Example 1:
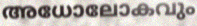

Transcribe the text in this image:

അധോലോകവും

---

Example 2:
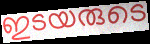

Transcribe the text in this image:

ഇടയരുടെ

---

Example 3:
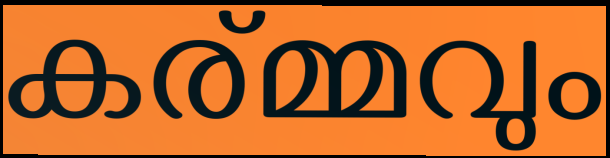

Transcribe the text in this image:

കര്മ്മവും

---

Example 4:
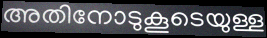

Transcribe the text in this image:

അതിനോടുകൂടെയുള്ള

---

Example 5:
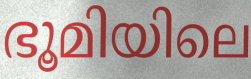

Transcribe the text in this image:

ഭൂമിയിലെ